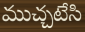
ముచ్చటేసి